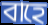
বাহে